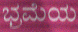
ಭ್ರಮೆಯ